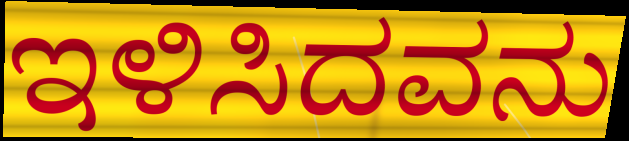
ಇಳಿಸಿದವನು